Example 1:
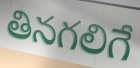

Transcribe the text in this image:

తినగలిగే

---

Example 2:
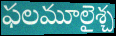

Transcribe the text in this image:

ఫలమూలైశ్చ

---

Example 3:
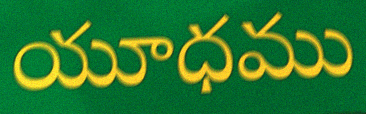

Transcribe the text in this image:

యూధము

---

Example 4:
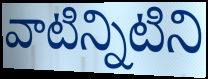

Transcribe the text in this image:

వాటిన్నిటిని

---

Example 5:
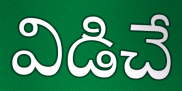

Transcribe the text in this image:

విడిచే